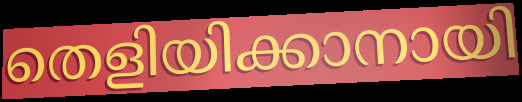
തെളിയിക്കാനായി